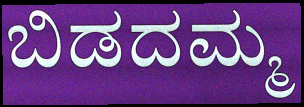
ಬಿಡದಮ್ಮ